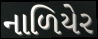
નાળિયેર